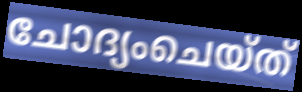
ചോദ്യംചെയ്ത്